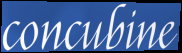
concubine